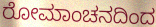
ರೋಮಾಂಚನದಿಂದ